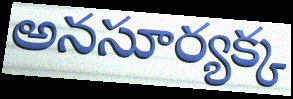
అనసూర్యక్క